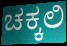
ಚಕ್ಕಲಿ